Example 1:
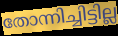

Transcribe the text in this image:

തോന്നിച്ചിട്ടില്ല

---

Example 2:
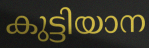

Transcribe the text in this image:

കുട്ടിയാന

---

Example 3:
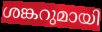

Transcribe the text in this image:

ശങ്കറുമായി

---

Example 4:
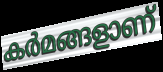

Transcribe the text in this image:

കർമങ്ങളാണ്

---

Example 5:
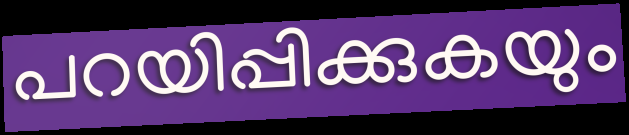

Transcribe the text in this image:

പറയിപ്പിക്കുകയും